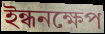
ইন্ধনক্ষেপ